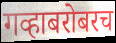
गव्हाबरोबरच